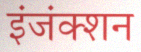
इंजंक्शन